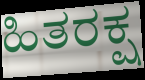
ಹಿತರಕ್ಷ